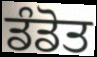
ਡੰਡੋਤ